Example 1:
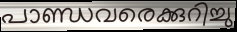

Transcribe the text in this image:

പാണ്ഡവരെക്കുറിച്ചു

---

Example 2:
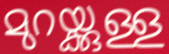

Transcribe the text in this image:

മുറയ്ക്കുള്ള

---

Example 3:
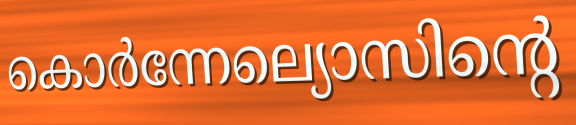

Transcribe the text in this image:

കൊർന്നേല്യൊസിന്റെ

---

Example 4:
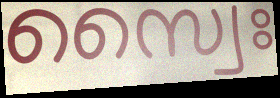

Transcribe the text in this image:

സ്വൈഃ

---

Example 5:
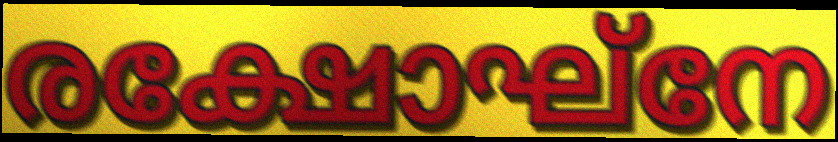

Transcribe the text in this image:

രക്ഷോഘ്നേ